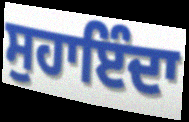
ਸੁਹਾਇੰਦਾ